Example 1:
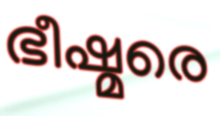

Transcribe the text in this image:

ഭീഷ്മരെ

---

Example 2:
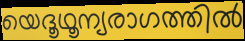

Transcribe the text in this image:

യെദൂഥൂന്യരാഗത്തിൽ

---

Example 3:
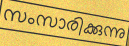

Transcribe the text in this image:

സംസാരിക്കുന്നു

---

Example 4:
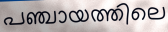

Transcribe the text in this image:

പഞ്ചായത്തിലെ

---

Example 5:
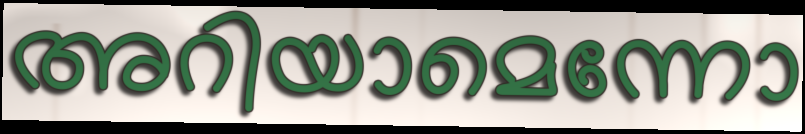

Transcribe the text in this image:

അറിയാമെന്നോ